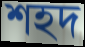
শহদ